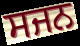
ਸਜਨ